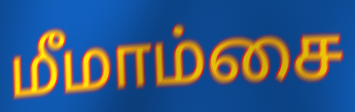
மீமாம்சை